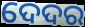
ଦେଦର